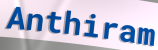
Anthiram